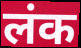
लंक